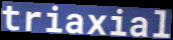
triaxial